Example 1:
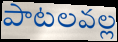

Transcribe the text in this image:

పాటలవల్ల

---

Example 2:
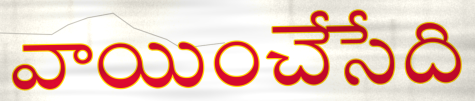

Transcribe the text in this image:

వాయించేసేది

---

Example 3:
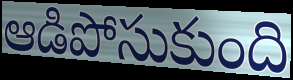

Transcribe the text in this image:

ఆడిపోసుకుంది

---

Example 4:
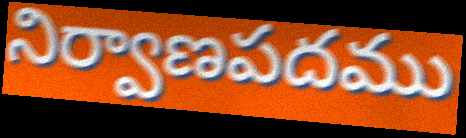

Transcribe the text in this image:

నిర్వాణపదము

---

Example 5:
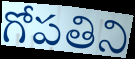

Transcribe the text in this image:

గోపతిని